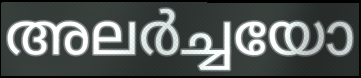
അലർച്ചയോ